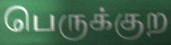
பெருக்குற